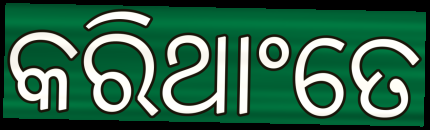
କରିଥାଂତେ